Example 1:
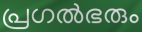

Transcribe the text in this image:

പ്രഗൽഭരും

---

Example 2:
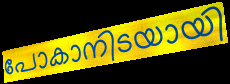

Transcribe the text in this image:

പോകാനിടയായി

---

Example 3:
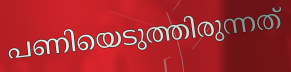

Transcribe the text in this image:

പണിയെടുത്തിരുന്നത്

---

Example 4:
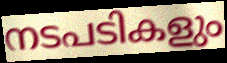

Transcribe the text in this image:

നടപടികളും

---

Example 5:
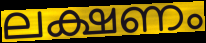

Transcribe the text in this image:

ലക്ഷണം